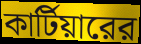
কার্টিয়ারের